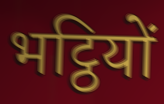
भट्ठियों